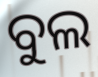
ବୁଲ